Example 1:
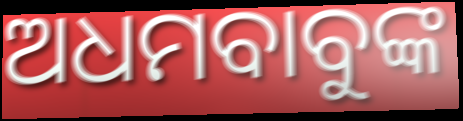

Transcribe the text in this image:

ଅଧମବାବୁଙ୍କ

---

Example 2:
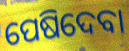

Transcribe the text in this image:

ପେଷିଦେବା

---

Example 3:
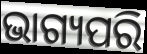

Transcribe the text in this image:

ଭାଗ୍ୟପରି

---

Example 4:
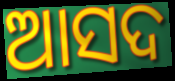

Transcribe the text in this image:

ଆସଦ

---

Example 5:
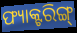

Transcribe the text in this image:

ଫ୍ୟାକ୍ଟରିଙ୍ଗ୍